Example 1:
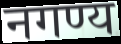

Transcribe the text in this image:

नगण्य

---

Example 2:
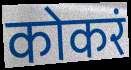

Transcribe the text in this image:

कोकरं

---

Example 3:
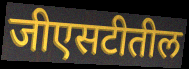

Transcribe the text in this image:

जीएसटीतील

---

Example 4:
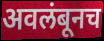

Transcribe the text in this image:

अवलंबूनच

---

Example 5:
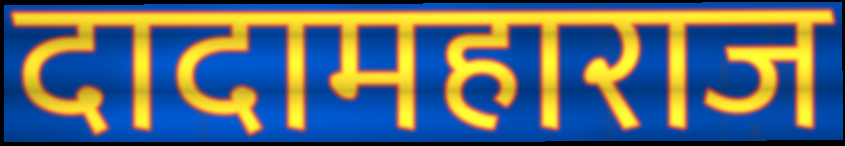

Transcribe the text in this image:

दादामहाराज